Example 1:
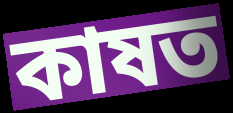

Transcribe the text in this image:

কাষত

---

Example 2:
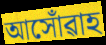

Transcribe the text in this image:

আসোঁৱাহ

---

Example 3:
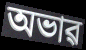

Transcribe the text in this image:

অভাৱ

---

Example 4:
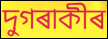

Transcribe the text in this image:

দুগৰাকীৰ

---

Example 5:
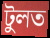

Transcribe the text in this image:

টুলত